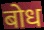
बोध